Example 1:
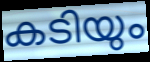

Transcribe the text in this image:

കടിയും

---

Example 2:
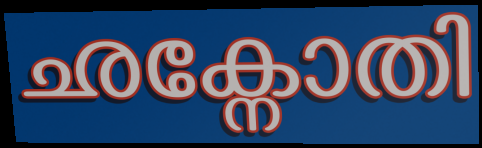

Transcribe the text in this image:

ഛക്നോതി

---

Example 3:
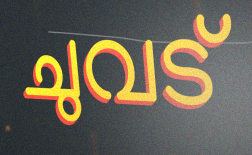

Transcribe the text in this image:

ചുവട്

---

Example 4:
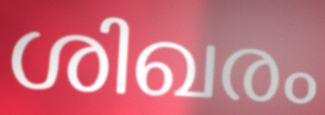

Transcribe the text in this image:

ശിഖരം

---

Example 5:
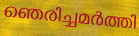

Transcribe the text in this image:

ഞെരിച്ചമർത്തി